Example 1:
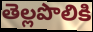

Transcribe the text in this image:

తెల్లపొలికి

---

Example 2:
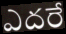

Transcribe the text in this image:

ఎదరే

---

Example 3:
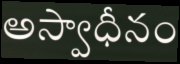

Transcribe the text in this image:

అస్వాధీనం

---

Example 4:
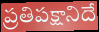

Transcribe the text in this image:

ప్రతిపక్షానిదే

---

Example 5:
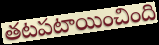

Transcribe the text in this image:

తటపటాయించింది